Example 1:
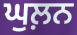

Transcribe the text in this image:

ਘੁਲ਼ਨ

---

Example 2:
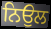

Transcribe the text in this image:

ਨਿਉਲ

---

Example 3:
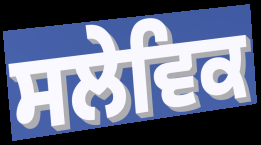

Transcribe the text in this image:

ਸਲੇਵਿਕ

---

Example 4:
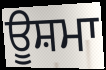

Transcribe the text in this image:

ਊਸ਼ਮਾ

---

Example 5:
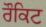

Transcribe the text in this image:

ਰੌਕਿਟ